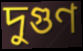
দুগুণ